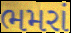
ભમરાં